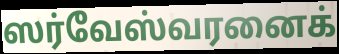
ஸர்வேஸ்வரனைக்